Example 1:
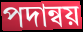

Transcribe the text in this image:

পদান্বয়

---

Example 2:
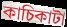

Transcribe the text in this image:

কাচিকাটা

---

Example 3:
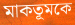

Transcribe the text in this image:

মাকতূমকে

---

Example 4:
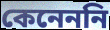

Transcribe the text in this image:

কেনেননি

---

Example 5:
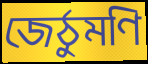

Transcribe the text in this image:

জেঠুমণি